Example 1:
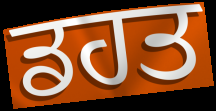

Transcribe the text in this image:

ਡਹਤ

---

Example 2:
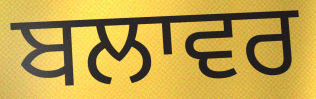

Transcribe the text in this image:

ਬਲਾਵਰ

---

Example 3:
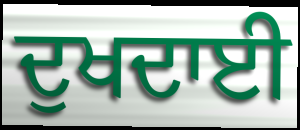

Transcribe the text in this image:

ਦੁਖਦਾਈ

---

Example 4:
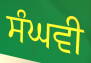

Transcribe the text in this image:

ਸੰਘਵੀ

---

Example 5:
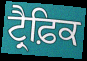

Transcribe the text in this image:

ਟ੍ਰੈਫ਼ਿਕ